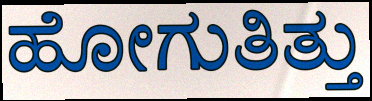
ಹೋಗುತಿತ್ತು